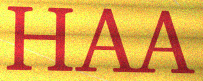
HAA